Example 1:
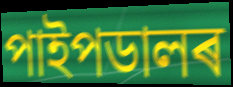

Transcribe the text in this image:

পাইপডালৰ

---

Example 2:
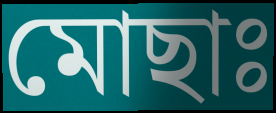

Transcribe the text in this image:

মোছাঃ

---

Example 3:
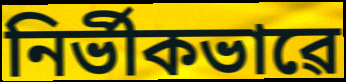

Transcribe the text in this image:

নিৰ্ভীকভাৱে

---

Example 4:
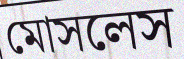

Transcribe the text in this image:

মোসলেস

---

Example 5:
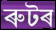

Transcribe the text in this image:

ৰুটৰ